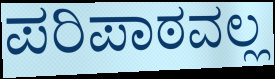
ಪರಿಪಾಠವಲ್ಲ